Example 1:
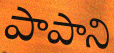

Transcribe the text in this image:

పాపాని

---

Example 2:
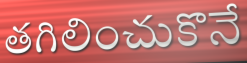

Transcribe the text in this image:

తగిలించుకొనే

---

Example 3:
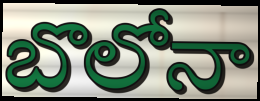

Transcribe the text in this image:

బొలోనా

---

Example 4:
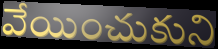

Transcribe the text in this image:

వేయించుకుని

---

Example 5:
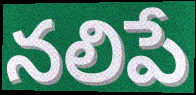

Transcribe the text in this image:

నలిపే